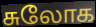
சுலோக